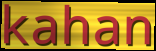
kahan